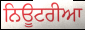
ਨਿਊਟਰੀਆ